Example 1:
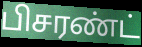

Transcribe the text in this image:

பிசரண்ட்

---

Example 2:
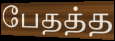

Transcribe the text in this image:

பேதத்த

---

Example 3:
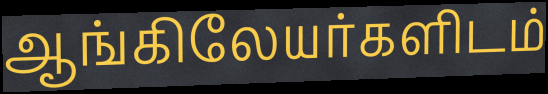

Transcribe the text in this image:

ஆங்கிலேயர்களிடம்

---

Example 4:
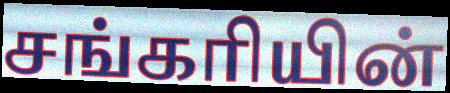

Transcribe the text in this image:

சங்கரியின்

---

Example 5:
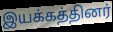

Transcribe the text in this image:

இயக்கத்தினர்